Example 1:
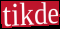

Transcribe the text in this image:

tikde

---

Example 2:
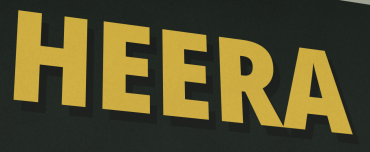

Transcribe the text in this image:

HEERA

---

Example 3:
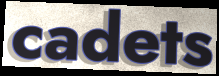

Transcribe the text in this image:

cadets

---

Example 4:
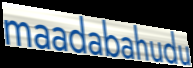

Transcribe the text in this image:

maadabahudu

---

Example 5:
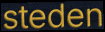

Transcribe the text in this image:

steden